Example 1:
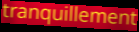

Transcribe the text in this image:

tranquillement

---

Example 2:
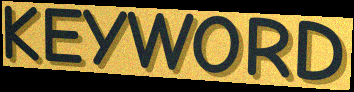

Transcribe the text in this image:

KEYWORD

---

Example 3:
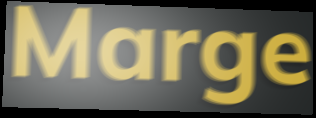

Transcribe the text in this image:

Marge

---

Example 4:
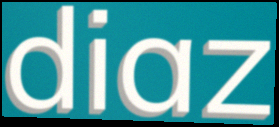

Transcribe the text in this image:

diaz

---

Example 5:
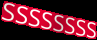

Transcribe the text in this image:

SSSSSSSS